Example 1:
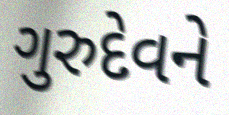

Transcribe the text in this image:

ગુરુદેવને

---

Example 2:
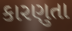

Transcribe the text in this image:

કારણુતા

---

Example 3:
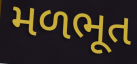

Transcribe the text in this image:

મળભૂત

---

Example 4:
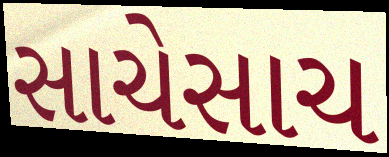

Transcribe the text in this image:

સાચેસાચ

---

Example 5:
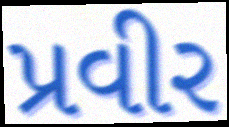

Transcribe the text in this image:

પ્રવીર